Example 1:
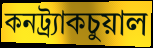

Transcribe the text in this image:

কনট্র্যাকচুয়াল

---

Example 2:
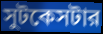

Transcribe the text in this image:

সুটকেসটার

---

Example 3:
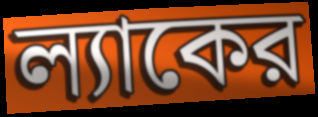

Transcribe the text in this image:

ল্যাকের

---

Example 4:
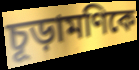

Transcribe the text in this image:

চূড়ামণিকে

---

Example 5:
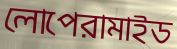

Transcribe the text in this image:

লোপেরামাইড